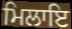
ਮਿਲਾਇ